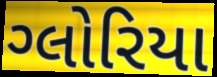
ગ્લોરિયા